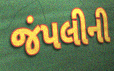
જંપલીની